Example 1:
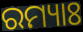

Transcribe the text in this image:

ରମ୍ୟାଃ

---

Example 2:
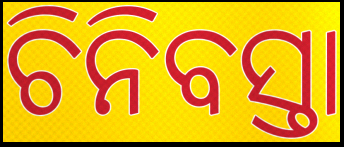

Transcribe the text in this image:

ଚିନିବସ୍ତା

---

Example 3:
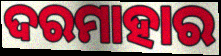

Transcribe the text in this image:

ଦରମାହାର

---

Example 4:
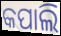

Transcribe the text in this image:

କପାଲି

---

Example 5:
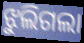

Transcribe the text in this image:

ଝୁଲିଗଲା